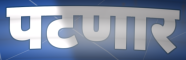
पटणार